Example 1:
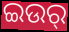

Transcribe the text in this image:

ଇଉର୍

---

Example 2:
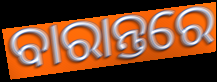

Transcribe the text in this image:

ବାରାନ୍ତରେ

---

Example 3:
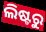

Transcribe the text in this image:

ଲିଷ୍ଟରୁ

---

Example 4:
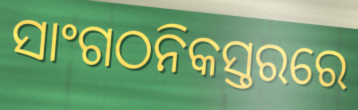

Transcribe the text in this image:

ସାଂଗଠନିକସ୍ତରରେ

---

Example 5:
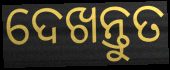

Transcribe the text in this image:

ଦେଖନ୍ତୁତ